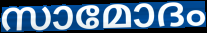
സാമോദം